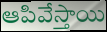
ఆపివేస్తాయి